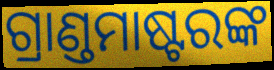
ଗ୍ରାଣ୍ଡମାଷ୍ଟରଙ୍କ